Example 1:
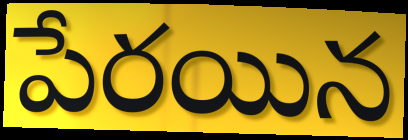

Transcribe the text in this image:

పేరయిన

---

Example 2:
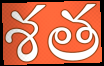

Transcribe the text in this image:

శత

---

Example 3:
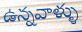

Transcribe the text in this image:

ఉన్నవాళ్ళు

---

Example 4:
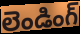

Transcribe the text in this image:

లెండింగ్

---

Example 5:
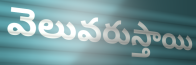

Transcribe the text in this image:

వెలువరుస్తాయి